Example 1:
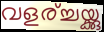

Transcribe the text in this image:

വളര്ച്ചയ്ക്കു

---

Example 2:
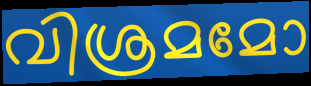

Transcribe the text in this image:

വിശ്രമമോ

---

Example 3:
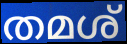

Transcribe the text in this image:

തമശ്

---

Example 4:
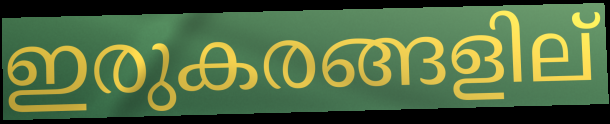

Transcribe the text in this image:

ഇരുകരങ്ങളില്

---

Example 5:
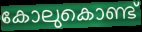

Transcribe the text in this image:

കോലുകൊണ്ട്